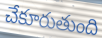
చేకూరుతుంది